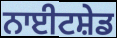
ਨਾਈਟਸ਼ੇਡ